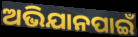
ଅଭିଯାନପାଇଁ